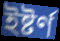
ইষ্টৰ্ণ